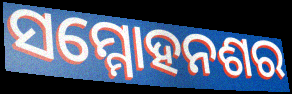
ସମ୍ମୋହନଶର